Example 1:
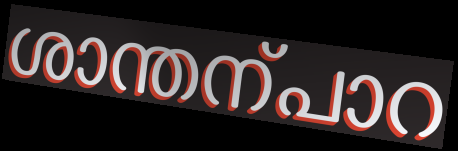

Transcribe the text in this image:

ശാന്തന്പാറ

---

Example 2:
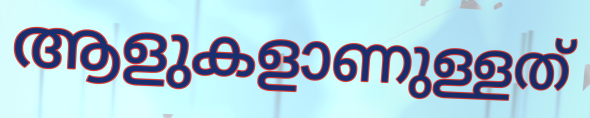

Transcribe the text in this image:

ആളുകളാണുള്ളത്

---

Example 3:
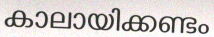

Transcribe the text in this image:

കാലായിക്കണ്ടം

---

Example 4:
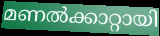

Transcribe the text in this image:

മണൽക്കാറ്റായി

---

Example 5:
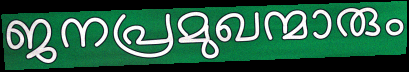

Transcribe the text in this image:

ജനപ്രമുഖന്മാരും